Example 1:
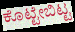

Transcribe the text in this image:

ಕೊಟ್ಟೇಬಿಟ್ಟ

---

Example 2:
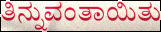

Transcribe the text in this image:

ತಿನ್ನುವಂತಾಯಿತು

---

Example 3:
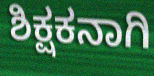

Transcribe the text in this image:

ಶಿಕ್ಷಕನಾಗಿ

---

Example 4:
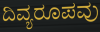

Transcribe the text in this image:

ದಿವ್ಯರೂಪವು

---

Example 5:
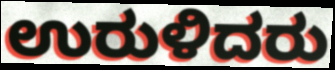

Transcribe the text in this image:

ಉರುಳಿದರು